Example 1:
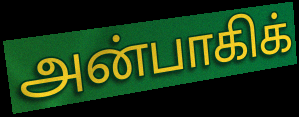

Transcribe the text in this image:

அன்பாகிக்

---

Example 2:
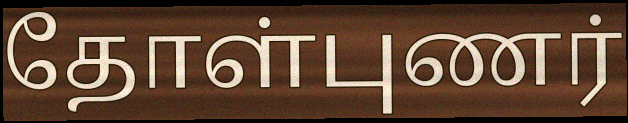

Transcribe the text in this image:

தோள்புணர்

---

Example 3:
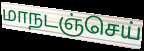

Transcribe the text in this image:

மாநடஞ்செய்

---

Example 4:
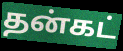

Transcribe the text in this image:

தன்கட்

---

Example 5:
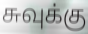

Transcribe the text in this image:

சுவுக்கு